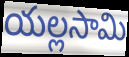
యల్లసామి